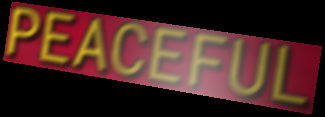
PEACEFUL